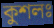
কুশলঃ